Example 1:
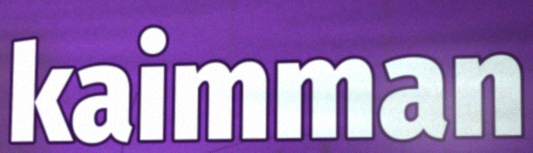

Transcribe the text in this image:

kaimman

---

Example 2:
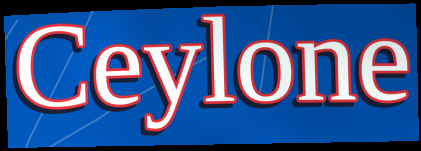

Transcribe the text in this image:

Ceylone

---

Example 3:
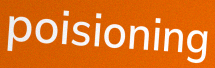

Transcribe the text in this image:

poisioning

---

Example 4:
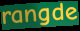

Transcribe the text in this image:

rangde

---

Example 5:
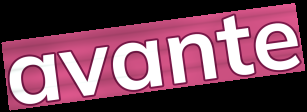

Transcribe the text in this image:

avante